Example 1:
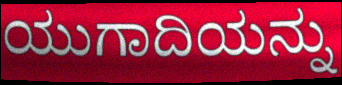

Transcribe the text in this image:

ಯುಗಾದಿಯನ್ನು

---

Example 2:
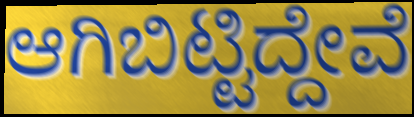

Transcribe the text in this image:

ಆಗಿಬಿಟ್ಟಿದ್ದೇವೆ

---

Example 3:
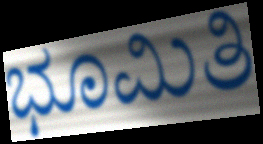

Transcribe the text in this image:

ಭೂಮಿತಿ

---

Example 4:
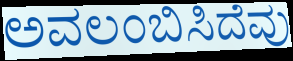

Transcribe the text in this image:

ಅವಲಂಬಿಸಿದೆವು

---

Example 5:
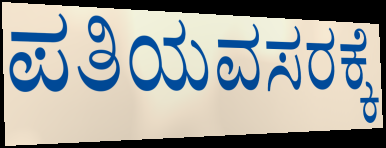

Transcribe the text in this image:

ಪತಿಯವಸರಕ್ಕೆ